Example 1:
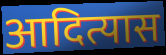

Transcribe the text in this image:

आदित्यास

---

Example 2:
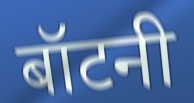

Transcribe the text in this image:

बॉटनी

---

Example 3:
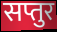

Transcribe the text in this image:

सप्तुर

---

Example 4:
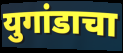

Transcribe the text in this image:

युगांडाचा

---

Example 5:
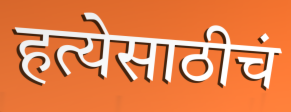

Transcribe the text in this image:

हत्येसाठीचं